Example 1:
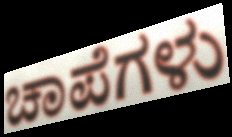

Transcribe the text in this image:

ಚಾಪೆಗಳು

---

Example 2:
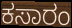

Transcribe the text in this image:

ಕಸಾರಂ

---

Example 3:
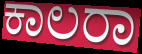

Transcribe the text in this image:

ಕಾಲರಾ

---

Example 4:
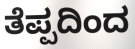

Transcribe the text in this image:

ತೆಪ್ಪದಿಂದ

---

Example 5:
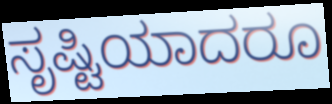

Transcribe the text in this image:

ಸೃಷ್ಟಿಯಾದರೂ